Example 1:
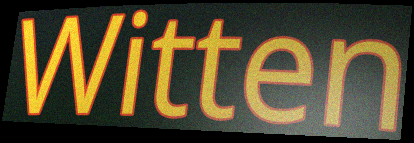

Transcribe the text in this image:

Witten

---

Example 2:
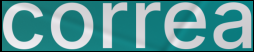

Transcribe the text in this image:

correa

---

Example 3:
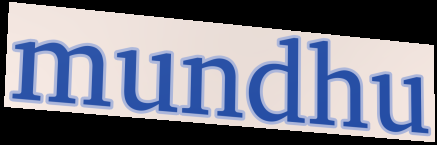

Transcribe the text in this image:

mundhu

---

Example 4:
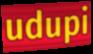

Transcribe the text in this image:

udupi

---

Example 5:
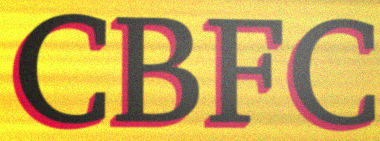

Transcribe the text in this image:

CBFC